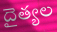
దైత్యల